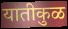
यातीकुळ